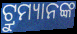
ଟ୍ରୁମ୍ୟାନଙ୍କ